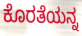
ಕೊರತೆಯನ್ನ